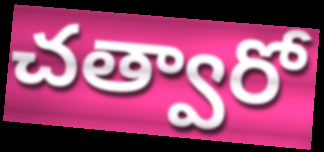
చత్వారో